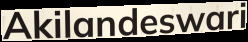
Akilandeswari